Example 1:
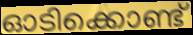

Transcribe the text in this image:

ഓടിക്കൊണ്ട്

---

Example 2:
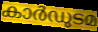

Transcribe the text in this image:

കാർഡുടമ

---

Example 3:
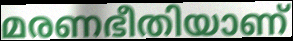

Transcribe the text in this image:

മരണഭീതിയാണ്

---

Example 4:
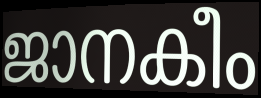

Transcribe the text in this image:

ജാനകീം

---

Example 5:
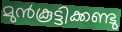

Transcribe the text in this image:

മുൻകൂട്ടിക്കണ്ടു